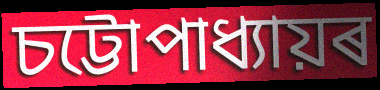
চট্টোপাধ্যায়ৰ